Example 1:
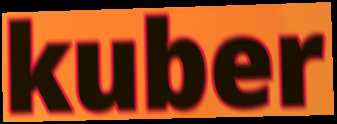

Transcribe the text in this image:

kuber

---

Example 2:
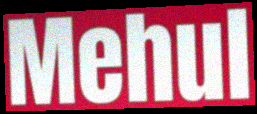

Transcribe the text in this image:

Mehul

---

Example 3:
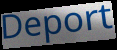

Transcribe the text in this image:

Deport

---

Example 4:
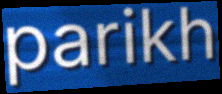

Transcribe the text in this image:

parikh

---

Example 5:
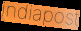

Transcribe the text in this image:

indiapost